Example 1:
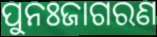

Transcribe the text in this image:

ପୁନଃଜାଗରଣ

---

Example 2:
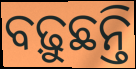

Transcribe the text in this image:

ବଢ଼ୁଛନ୍ତି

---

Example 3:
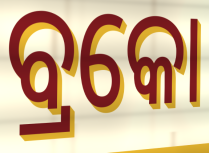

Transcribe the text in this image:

ବ୍ରକୋ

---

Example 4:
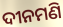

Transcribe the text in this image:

ଦୀନମଣି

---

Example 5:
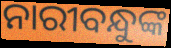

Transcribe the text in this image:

ନାରୀବନ୍ଧୁଙ୍କ